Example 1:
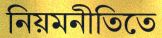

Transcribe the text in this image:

নিয়মনীতিতে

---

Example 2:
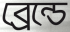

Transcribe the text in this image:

ব্রেন্ডে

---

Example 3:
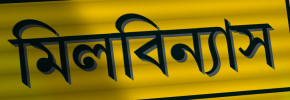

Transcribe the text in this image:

মিলবিন্যাস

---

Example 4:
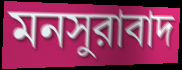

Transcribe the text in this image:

মনসুরাবাদ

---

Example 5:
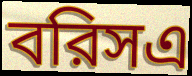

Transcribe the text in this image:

বরিসএ